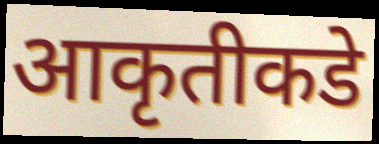
आकृतीकडे